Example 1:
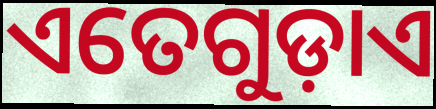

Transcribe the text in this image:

ଏତେଗୁଡ଼ାଏ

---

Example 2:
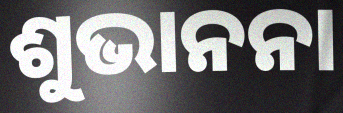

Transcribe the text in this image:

ଶୁଭାନନା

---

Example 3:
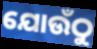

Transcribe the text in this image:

ଯୋଉଁଠୁ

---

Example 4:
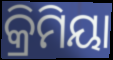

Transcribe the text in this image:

କ୍ରିମିୟା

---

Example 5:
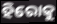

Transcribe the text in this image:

ହିରୋକୁ